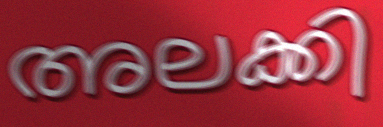
അലക്കി